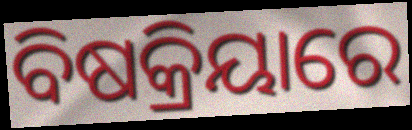
ବିଷକ୍ରିୟାରେ